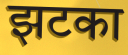
झटका